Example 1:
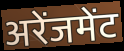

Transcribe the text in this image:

अरेंजमेंट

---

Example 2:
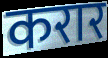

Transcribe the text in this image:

करार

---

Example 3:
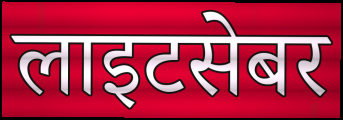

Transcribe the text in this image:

लाइटसेबर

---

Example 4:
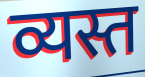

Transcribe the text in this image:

व्यस्त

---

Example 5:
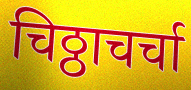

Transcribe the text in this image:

चिठ्ठाचर्चा